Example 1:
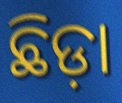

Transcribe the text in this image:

ଛିଡ଼ା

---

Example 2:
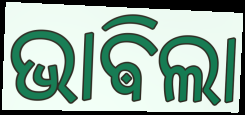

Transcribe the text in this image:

ଭାଵିଲା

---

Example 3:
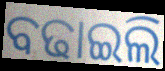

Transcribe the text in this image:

ବଢାଇଲି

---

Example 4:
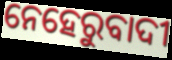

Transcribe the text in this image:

ନେହେରୁବାଦୀ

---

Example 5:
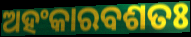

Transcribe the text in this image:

ଅହଂକାରବଶତଃ